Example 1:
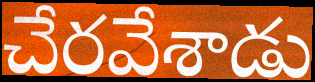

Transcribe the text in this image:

చేరవేశాడు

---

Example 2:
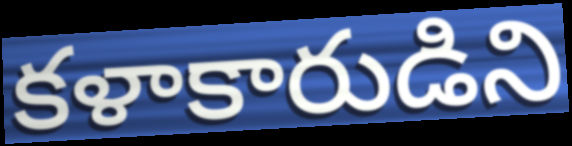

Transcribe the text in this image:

కళాకారుడిని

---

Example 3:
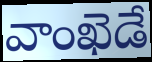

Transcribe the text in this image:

వాంఖెడే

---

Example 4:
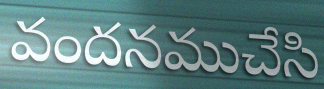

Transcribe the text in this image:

వందనముచేసి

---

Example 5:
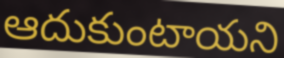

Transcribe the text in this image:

ఆదుకుంటాయని